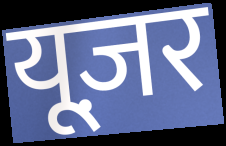
यूज़र